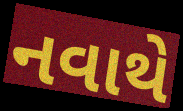
નવાથે